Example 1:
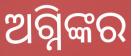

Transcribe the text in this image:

ଅଗ୍ନିଙ୍କର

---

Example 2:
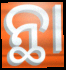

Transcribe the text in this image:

ନ୍ଥା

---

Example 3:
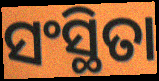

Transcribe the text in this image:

ସଂସ୍ଥିତା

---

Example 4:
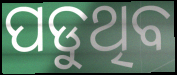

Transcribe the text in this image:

ପଡୁଥିବ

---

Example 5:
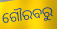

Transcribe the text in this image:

ଗୌରବରୁ